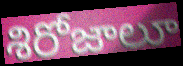
శిరోజాలూ